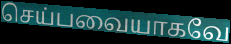
செய்பவையாகவே